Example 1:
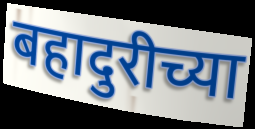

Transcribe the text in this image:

बहादुरीच्या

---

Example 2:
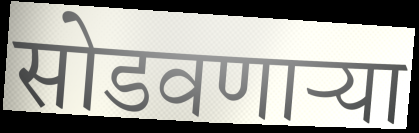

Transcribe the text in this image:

सोडवणाऱ्या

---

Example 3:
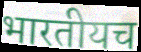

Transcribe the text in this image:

भारतीयच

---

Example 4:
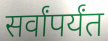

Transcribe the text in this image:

सर्वांपर्यंत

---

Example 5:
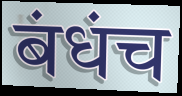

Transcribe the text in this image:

बंधंच